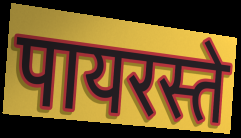
पायरस्ते